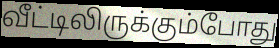
வீட்டிலிருக்கும்போது